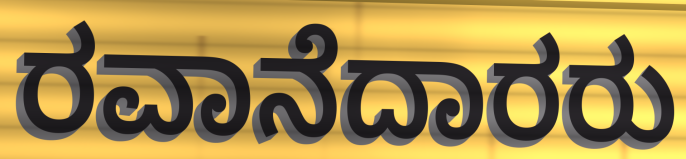
ರವಾನೆದಾರರು